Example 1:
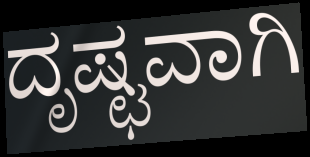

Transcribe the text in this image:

ದೃಷ್ಟವಾಗಿ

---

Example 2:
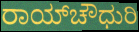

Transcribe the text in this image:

ರಾಯ್‌ಚೌಧುರಿ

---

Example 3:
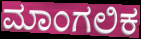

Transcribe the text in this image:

ಮಾಂಗಲಿಕ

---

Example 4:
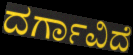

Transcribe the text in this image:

ದರ್ಗಾವಿದೆ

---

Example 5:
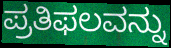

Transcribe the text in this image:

ಪ್ರತಿಫಲವನ್ನು